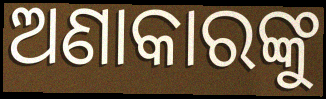
ଅଣାକାରଙ୍କୁ